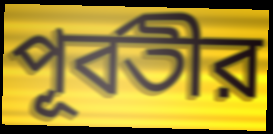
পূর্বতীর